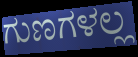
ಗುಣಗಳಲ್ಲ